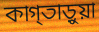
কাগ্‌তাড়ুয়া